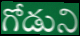
గోడుని